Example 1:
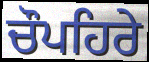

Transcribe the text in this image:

ਚੌਪਹਿਰੇ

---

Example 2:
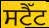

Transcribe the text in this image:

ਸਟੈੱਟ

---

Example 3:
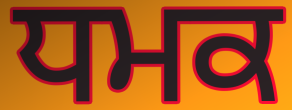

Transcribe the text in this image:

ਧਮਕ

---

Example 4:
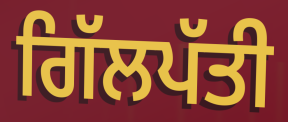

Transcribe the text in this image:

ਗਿੱਲਪੱਤੀ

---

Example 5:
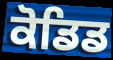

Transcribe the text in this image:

ਕੋਡਿਡ